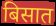
बिसात